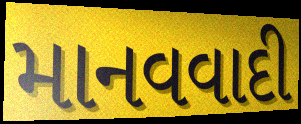
માનવવાદી